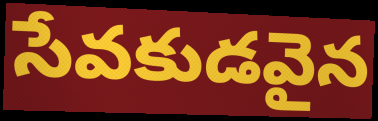
సేవకుడవైన